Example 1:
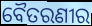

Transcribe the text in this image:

ବୈତରଣୀର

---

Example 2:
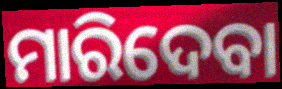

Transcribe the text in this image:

ମାରିଦେବା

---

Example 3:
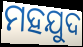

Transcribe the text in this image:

ମହଯୁଦ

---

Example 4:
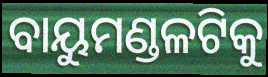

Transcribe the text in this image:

ବାୟୁମଣ୍ଡଳଟିକୁ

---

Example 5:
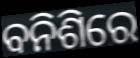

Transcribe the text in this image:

ବନିଶିରେ